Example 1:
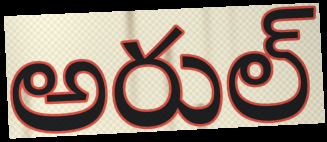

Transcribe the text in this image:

అరుల్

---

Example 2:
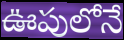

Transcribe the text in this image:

ఊపులోనే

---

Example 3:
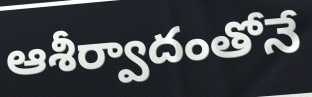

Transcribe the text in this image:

ఆశీర్వాదంతోనే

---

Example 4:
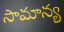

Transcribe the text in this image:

సామాన్య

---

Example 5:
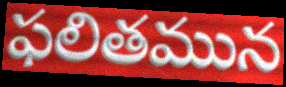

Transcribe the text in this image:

ఫలితమున